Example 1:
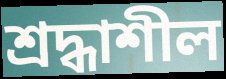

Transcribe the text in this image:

শ্ৰদ্ধাশীল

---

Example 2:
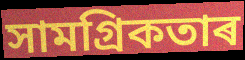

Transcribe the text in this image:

সামগ্ৰিকতাৰ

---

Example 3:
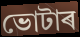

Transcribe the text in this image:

ভোটাৰ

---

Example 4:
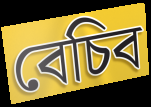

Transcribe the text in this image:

বেচিব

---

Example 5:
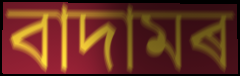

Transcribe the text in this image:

বাদামৰ